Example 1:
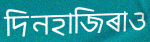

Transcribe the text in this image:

দিনহাজিৰাও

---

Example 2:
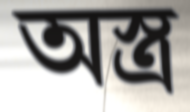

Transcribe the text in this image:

অস্ত্ৰ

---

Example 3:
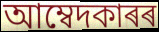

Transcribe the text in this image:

আম্বেদকাৰৰ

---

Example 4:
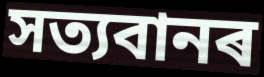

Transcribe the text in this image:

সত্যবানৰ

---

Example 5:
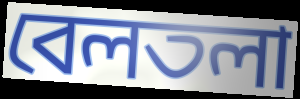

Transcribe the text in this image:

বেলতলা